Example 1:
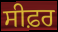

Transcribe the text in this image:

ਸੀਫ਼ਰ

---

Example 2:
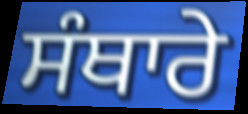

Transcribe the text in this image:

ਸੰਥਾਰੇ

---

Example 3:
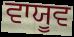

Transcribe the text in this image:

ਵਾਯੂਵ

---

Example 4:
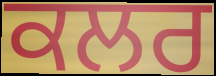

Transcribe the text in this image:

ਕਲਰ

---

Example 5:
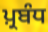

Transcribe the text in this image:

ਪ਼੍ਰਬੰਧ